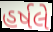
હર્ષલે